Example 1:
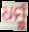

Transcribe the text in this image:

ଧର୍ମ୍ମୁ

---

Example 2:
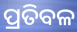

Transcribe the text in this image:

ପ୍ରତିବଳ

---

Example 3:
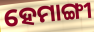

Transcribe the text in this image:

ହେମାଙ୍ଗୀ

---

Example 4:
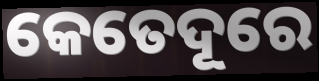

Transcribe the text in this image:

କେତେଦୂରେ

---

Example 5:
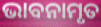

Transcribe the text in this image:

ଭାବନାମୃତ